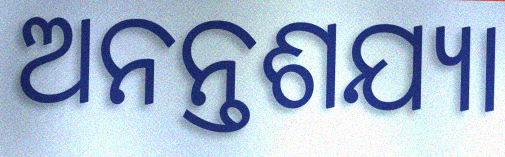
ଅନନ୍ତଶଯ୍ୟା